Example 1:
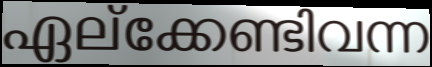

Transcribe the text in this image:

ഏല്ക്കേണ്ടിവന്ന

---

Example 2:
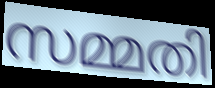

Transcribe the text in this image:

സമ്മതി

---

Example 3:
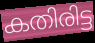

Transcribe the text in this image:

കതിരിട്ട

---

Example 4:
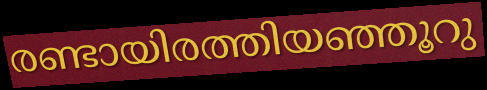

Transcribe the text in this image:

രണ്ടായിരത്തിയഞ്ഞൂറു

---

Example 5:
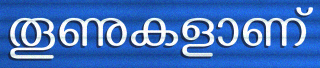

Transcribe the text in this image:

തൂണുകളാണ്